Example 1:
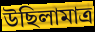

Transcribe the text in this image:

উছিলামাত্র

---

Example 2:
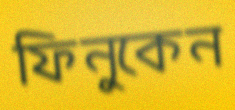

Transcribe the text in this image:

ফিনুকেন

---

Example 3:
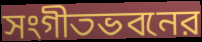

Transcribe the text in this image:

সংগীতভবনের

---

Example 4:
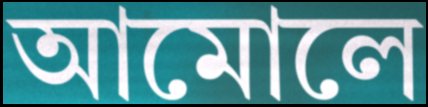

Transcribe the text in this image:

আমোলে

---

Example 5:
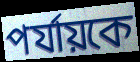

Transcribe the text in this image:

পর্যায়কে